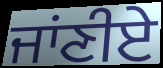
ਜਾਂਣੀਏ